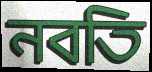
নবতি